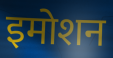
इमोशन